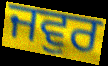
ਜਵੁਰ